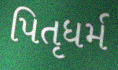
પિતૃધર્મ